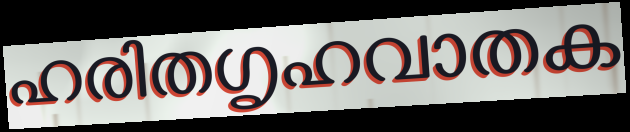
ഹരിതഗൃഹവാതക